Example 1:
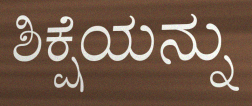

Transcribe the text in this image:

ಶಿಕ್ಷೆಯನ್ನು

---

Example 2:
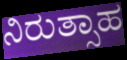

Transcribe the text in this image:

ನಿರುತ್ಸಾಹ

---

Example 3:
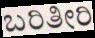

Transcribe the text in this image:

ಬರಿತೀರಿ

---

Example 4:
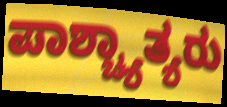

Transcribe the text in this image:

ಪಾಶ್ಚ್ಯಾತ್ಯರು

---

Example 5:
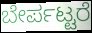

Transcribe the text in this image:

ಬೇರ್ಪಟ್ಟರೆ